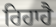
ਰਿਹਾਹੈ